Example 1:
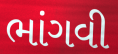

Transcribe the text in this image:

ભાંગવી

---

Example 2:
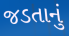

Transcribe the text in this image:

જડતાનું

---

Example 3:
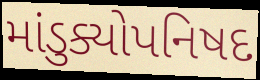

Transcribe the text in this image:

માંડુક્યોપનિષદ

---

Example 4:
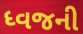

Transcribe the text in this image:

ધ્વજની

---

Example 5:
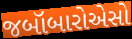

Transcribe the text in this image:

જબૉબારોએસો